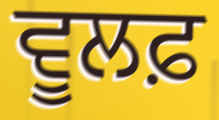
ਵੂਲਫ਼